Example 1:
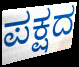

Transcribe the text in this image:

ಪಕ್ಷದ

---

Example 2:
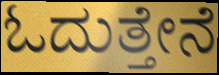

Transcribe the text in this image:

ಓದುತ್ತೇನೆ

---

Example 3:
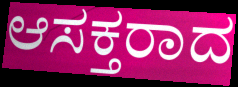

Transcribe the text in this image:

ಆಸಕ್ತರಾದ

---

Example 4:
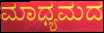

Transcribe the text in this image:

ಮಾಧ್ಯಮದ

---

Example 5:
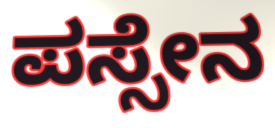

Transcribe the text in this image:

ಪಸ್ಸೇನ